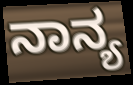
ನಾನ್ಯ